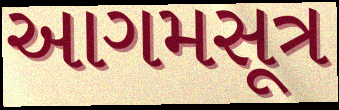
આગમસૂત્ર